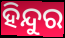
ହିନ୍ଦୁର